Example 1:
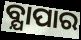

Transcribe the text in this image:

ବ୍ଯାପାର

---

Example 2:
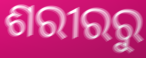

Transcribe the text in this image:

ଶରୀରରୁ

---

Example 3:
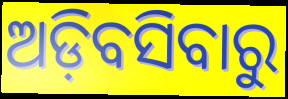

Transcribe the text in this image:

ଅଡ଼ିବସିବାରୁ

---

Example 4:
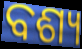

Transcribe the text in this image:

ବଶ୍ୟ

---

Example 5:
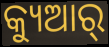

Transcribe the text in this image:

କ୍ୟୁଆର୍